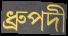
ধ্রুপদী